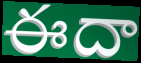
ఈదా